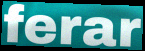
ferar